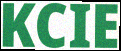
KCIE